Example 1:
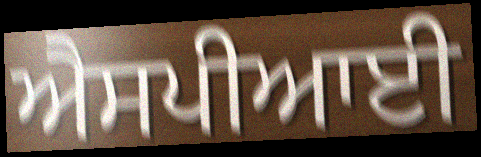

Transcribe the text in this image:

ਐਸਪੀਆਈ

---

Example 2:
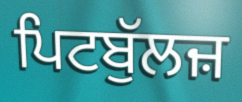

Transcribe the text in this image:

ਪਿਟਬੁੱਲਜ਼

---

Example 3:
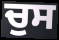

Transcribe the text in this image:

ਚੁਸ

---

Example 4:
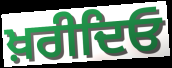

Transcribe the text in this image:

ਖ਼ਰੀਦਿਓ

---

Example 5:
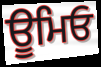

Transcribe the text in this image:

ਊਮਿਓ